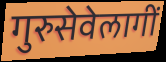
गुरुसेवेलागीं